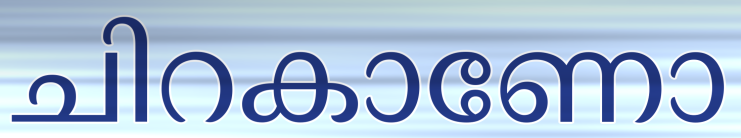
ചിറകാണോ